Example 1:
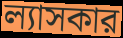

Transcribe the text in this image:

ল্যাসকার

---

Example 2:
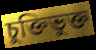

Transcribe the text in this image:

চুক্তিভুক্ত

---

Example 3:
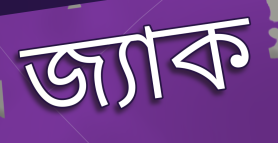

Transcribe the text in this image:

জ্যাক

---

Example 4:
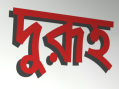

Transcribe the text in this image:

দুরূহ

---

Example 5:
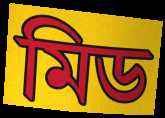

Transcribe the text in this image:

মিড